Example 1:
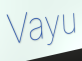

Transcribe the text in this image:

Vayu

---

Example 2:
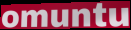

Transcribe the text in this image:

omuntu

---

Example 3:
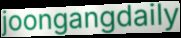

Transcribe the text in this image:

joongangdaily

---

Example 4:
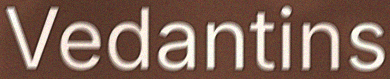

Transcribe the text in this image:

Vedantins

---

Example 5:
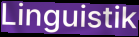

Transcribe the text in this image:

Linguistik